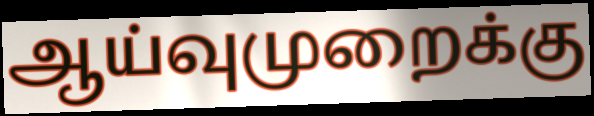
ஆய்வுமுறைக்கு